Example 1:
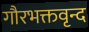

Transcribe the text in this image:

गौरभक्तवृन्द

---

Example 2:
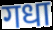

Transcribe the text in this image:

गधा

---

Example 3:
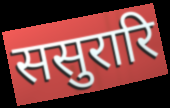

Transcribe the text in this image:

ससुरारि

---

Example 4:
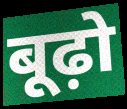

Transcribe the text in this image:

बूढ़ो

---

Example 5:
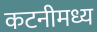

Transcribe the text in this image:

कटनीमध्य